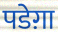
पडेग़ा